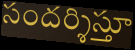
సందర్శిస్తూ